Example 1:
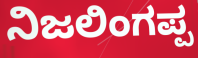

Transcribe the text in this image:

ನಿಜಲಿಂಗಪ್ಪ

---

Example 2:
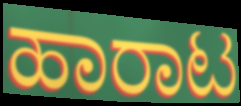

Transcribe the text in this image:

ಹಾರಾಟ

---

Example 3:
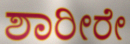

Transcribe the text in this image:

ಶಾರೀರೇ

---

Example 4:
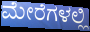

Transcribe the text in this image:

ಮೇರೆಗಳಲ್ಲಿ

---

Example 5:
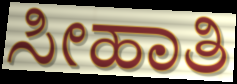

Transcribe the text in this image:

ಸೀಹಾತಿ